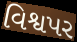
વિશ્વપર